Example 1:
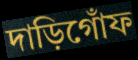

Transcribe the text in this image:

দাড়িগোঁফ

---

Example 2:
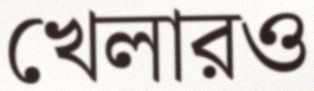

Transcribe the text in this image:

খেলারও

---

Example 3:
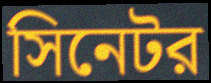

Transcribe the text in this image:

সিনেটর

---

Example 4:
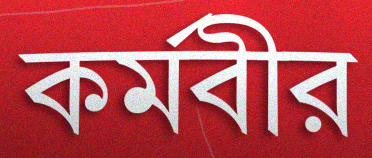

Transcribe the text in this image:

কর্মবীর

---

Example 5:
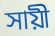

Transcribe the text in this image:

সায়ী